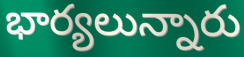
భార్యలున్నారు